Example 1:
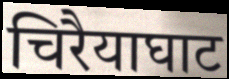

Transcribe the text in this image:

चिरैयाघाट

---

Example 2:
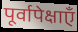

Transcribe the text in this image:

पूर्वापेक्षाएँ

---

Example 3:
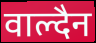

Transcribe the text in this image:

वाल्दैन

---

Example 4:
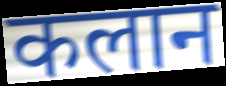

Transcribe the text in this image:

कलान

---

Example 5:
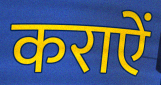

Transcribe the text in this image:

कराऐं